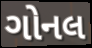
ગોનલ